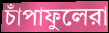
চাঁপাফুলেরা